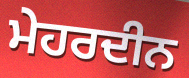
ਮੇਹਰਦੀਨ